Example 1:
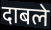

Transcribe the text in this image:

दाबले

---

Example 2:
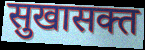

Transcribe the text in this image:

सुखासक्त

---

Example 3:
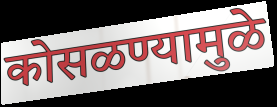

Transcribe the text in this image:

कोसळण्यामुळे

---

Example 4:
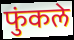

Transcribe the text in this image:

फुंकले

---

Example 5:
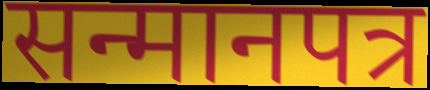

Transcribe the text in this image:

सन्मानपत्र